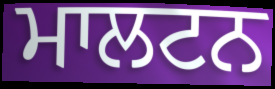
ਮਾਲਟਨ